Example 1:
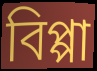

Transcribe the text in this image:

বিপ্পা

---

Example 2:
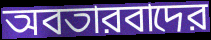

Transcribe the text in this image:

অবতারবাদের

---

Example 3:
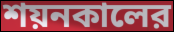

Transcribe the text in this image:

শয়নকালের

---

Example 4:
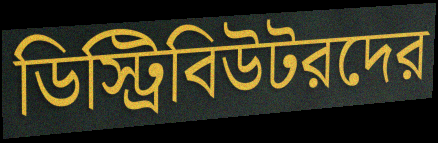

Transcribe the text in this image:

ডিস্ট্রিবিউটরদের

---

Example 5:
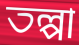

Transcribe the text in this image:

তল্পা